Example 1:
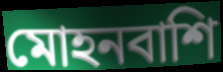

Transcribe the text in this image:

মোহনবাশি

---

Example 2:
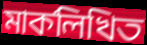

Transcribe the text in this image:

মার্কলিখিত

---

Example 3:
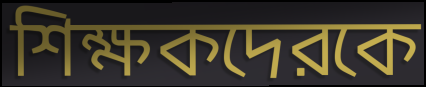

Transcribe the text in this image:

শিক্ষকদেরকে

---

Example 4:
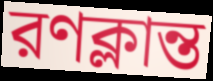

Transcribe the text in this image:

রণক্লান্ত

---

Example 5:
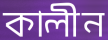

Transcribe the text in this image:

কালীন